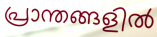
പ്രാന്തങ്ങളിൽ